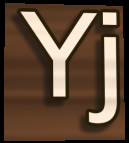
Yj